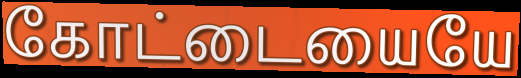
கோட்டையையே